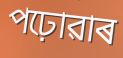
পঢ়োৱাৰ